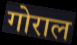
गोराल